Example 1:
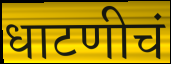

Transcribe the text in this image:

धाटणीचं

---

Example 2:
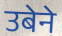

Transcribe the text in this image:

उबेने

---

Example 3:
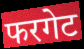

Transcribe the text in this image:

फरगेट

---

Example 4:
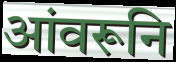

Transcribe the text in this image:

आंवरूनि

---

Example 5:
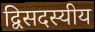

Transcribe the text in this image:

द्विसदस्यीय